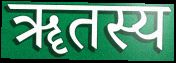
ॠतस्य